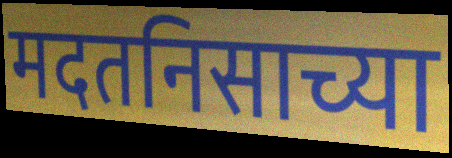
मदतनिसाच्या